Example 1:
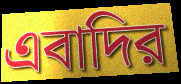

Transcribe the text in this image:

এবাদির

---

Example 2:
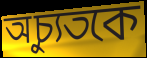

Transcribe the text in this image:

অচ্যুতকে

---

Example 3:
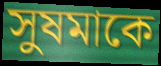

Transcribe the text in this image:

সুষমাকে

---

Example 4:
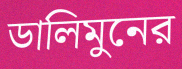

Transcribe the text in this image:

ডালিমুনের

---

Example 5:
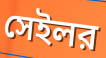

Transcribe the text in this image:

সেইলর